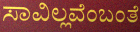
ಸಾವಿಲ್ಲವೆಂಬಂತೆ